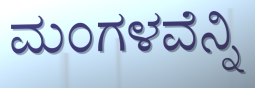
ಮಂಗಳವೆನ್ನಿ